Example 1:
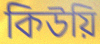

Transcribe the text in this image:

কিউয়ি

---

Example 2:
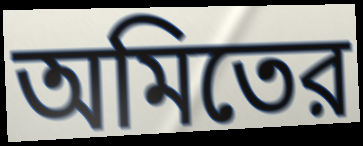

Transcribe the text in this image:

অমিতের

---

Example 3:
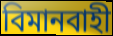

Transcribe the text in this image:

বিমানবাহী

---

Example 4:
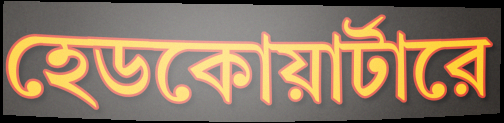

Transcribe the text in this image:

হেডকোয়ার্টারে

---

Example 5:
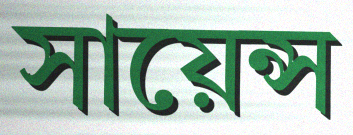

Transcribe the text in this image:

সায়েন্স